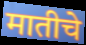
मातीचे